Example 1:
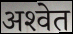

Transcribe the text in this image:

अश्‍वेत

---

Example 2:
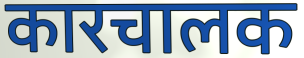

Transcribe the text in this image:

कारचालक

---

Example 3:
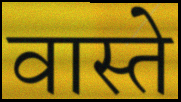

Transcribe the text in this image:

वास्ते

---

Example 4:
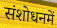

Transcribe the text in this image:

संशोधनमें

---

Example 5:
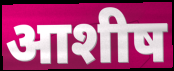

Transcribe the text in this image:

आशीष